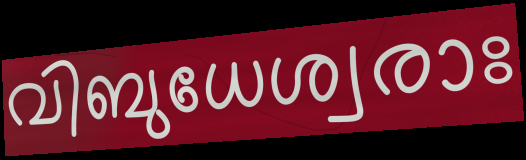
വിബുധേശ്വരാഃ